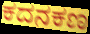
ಕದನಕಣ